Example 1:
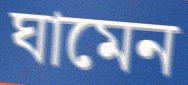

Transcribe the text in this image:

ঘামেন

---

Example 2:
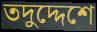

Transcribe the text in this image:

তদুদ্দেশে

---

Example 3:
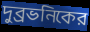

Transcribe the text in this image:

দুব্রভনিকের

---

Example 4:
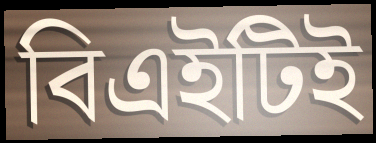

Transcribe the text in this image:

বিএইটিই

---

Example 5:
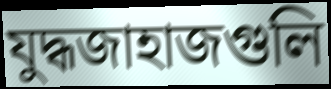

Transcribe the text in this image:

যুদ্ধজাহাজগুলি